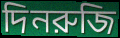
দিনরুজি